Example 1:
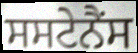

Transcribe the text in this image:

ਸਸਟੇਨੈਂਸ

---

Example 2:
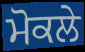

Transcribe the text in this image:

ਮੋਕਲੇ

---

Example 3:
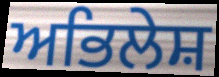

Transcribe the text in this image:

ਅਭਿਲੇਸ਼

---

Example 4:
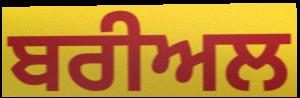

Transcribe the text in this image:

ਬਰੀਅਲ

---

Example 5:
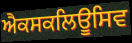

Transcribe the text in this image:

ਐਕਸਕਲਿਊਸਿਵ